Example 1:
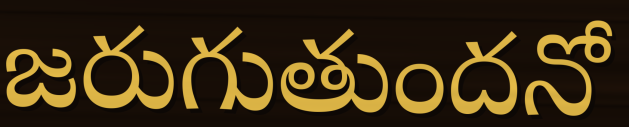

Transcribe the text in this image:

జరుగుతుందనో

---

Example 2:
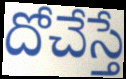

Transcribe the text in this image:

దోచేస్తే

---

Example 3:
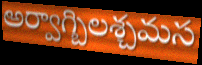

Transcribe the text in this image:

అర్వాగ్బిలశ్చమస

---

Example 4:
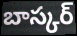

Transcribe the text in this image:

బాస్కర్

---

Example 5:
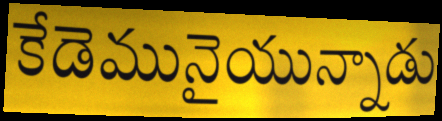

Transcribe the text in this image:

కేడెమునైయున్నాడు